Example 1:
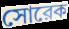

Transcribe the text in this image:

সোরেক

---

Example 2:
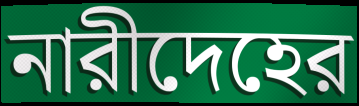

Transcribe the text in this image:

নারীদেহের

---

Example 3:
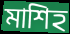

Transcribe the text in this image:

মাশিহ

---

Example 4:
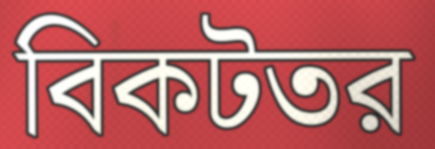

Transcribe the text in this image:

বিকটতর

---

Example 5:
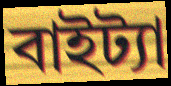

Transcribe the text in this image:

বাইট্যা